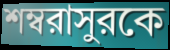
শম্বরাসুরকে